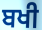
ਬਖੀ